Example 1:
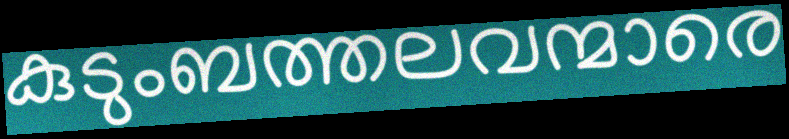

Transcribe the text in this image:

കുടുംബത്തലവന്മാരെ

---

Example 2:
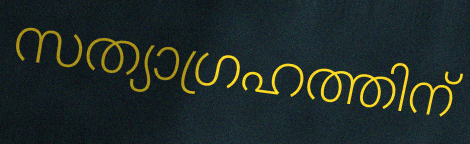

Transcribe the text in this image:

സത്യാഗ്രഹത്തിന്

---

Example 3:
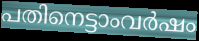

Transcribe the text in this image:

പതിനെട്ടാംവർഷം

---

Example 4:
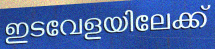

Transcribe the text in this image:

ഇടവേളയിലേക്ക്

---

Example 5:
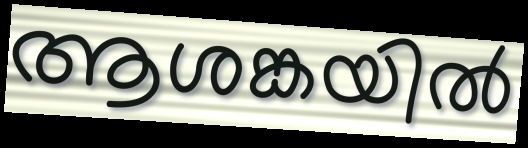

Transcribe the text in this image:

ആശങ്കയിൽ